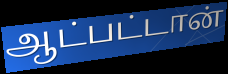
ஆட்பட்டான்